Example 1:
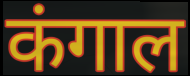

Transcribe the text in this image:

कंगाल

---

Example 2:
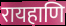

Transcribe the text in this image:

रायहाणि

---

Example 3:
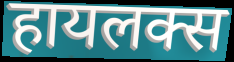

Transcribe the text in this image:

हायलक्स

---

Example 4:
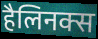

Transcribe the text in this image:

हैलिनक्स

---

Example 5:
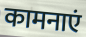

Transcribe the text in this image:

कामनाएं